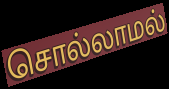
சொல்லாமல்